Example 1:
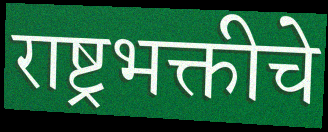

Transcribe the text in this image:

राष्ट्रभक्तीचे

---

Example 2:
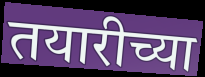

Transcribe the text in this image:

तयारीच्या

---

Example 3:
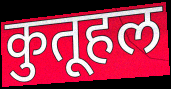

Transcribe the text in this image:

कुतूहल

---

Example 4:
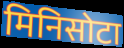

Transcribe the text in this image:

मिनिसोटा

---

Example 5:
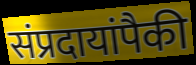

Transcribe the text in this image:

संप्रदायांपैकी